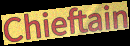
Chieftain